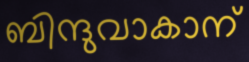
ബിന്ദുവാകാന്